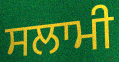
ਸਲਾਮੀ